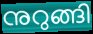
നുറുങ്ങി